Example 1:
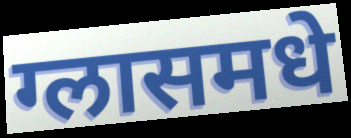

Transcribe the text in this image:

ग्लासमधे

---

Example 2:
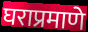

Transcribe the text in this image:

घराप्रमाणे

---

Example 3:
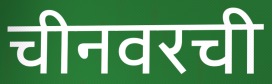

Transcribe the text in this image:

चीनवरची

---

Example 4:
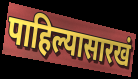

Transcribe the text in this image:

पाहिल्यासारखं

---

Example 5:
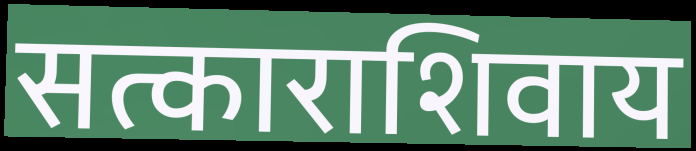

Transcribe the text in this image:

सत्काराशिवाय